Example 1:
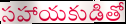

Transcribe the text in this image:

సహాయకుడితో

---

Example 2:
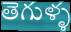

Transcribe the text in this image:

తెగుళ్ళ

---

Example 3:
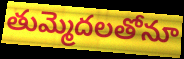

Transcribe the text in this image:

తుమ్మెదలతోనూ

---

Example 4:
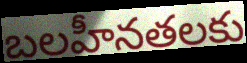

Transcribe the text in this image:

బలహీనతలకు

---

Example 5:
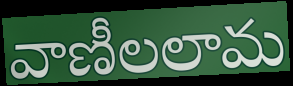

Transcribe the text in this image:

వాణీలలామ